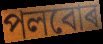
পলবোৰ